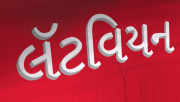
લૅટવિયન